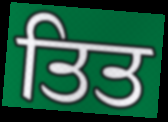
ਤਿਤ